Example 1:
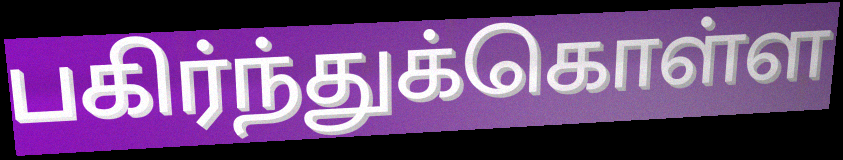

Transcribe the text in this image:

பகிர்ந்துக்கொள்ள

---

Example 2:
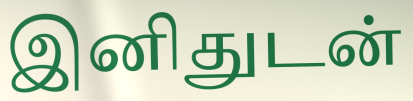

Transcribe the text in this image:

இனிதுடன்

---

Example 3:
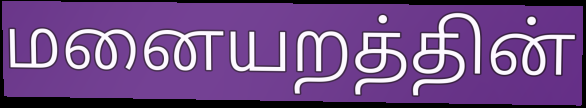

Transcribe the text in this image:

மனையறத்தின்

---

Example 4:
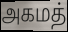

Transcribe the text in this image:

அகமத்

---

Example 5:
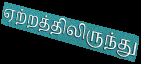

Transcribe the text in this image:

ஏற்றத்திலிருந்து